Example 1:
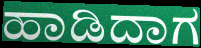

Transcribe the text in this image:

ಹಾಡಿದಾಗ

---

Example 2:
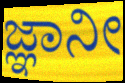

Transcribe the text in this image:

ಜ್ಞಾನೀ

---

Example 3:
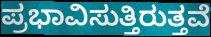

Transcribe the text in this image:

ಪ್ರಭಾವಿಸುತ್ತಿರುತ್ತವೆ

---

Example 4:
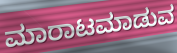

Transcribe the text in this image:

ಮಾರಾಟಮಾಡುವ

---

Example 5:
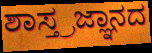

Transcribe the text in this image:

ಶಾಸ್ತ್ರಜ್ಞಾನದ